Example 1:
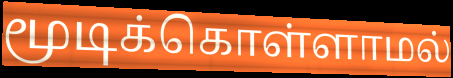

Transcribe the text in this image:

மூடிக்கொள்ளாமல்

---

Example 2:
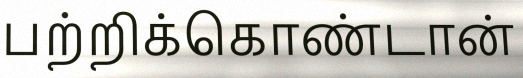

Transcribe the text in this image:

பற்றிக்கொண்டான்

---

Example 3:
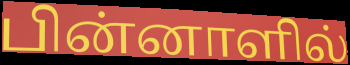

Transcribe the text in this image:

பின்னாளில்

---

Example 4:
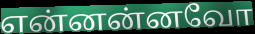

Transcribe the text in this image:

என்னன்னவோ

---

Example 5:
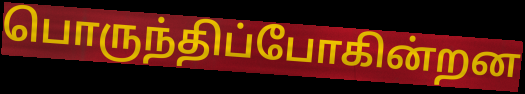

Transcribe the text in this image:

பொருந்திப்போகின்றன